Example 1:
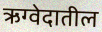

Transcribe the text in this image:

ऋग्वेदातील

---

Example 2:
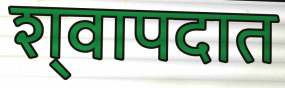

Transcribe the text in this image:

श्वापदात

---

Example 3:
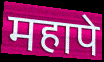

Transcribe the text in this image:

महापे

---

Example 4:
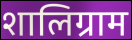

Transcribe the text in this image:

शालिग्राम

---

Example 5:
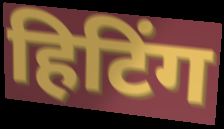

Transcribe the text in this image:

हिटिंग